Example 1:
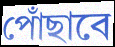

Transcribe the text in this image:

পোঁছাবে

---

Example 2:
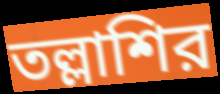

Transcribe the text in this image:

তল্লাশির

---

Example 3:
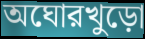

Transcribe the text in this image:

অঘোরখুড়ো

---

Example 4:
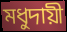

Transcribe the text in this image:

মধুদায়ী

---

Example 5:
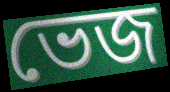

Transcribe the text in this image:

ভেজ